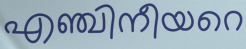
എഞ്ചിനീയറെ